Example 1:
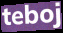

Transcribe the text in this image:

teboj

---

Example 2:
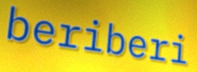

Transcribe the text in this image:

beriberi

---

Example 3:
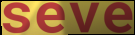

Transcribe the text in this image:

seve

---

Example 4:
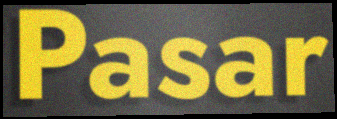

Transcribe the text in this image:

Pasar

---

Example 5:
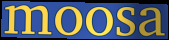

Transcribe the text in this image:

moosa